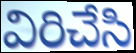
విరిచేసి